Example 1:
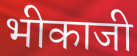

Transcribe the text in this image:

भीकाजी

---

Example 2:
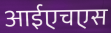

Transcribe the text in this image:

आईएचएस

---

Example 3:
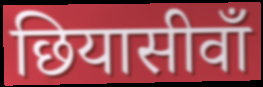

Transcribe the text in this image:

छियासीवाँ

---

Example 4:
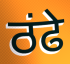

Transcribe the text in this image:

ठंढे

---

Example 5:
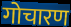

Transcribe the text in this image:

गोचारण